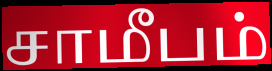
சாமீபம்